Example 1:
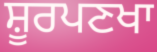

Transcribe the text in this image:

ਸ਼ੂਰਪਣਖਾ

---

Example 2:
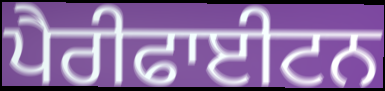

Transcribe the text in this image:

ਪੈਰੀਫਾਈਟਨ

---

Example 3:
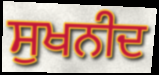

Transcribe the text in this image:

ਸੁਖਨੀਦ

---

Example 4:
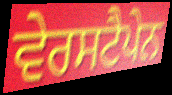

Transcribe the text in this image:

ਵੇਰਸਟੈਪੇਨ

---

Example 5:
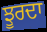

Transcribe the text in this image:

ਝੂਰਦਾ